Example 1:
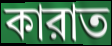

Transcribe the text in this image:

কারাত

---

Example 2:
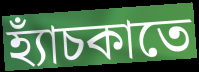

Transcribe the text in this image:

হ্যাঁচকাতে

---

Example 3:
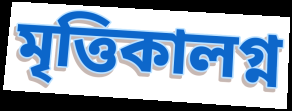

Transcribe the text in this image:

মৃত্তিকালগ্ন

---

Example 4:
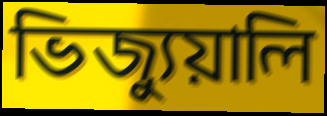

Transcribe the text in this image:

ভিজ্যুয়ালি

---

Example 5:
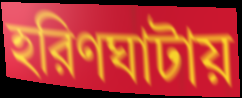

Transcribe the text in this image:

হরিণঘাটায়